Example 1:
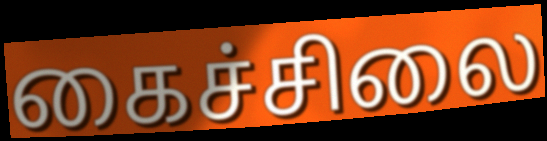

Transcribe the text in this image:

கைச்சிலை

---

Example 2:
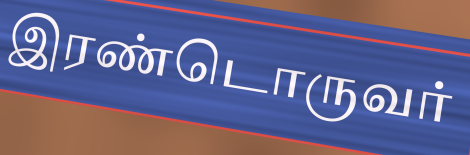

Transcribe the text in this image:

இரண்டொருவர்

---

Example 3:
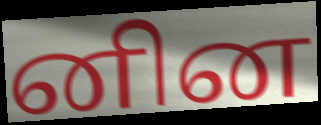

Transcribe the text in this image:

னின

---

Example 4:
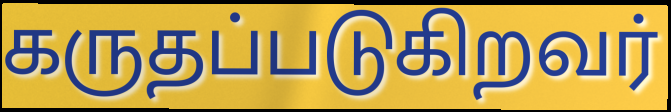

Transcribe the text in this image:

கருதப்படுகிறவர்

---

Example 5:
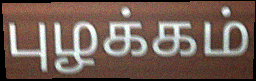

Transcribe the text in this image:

புழக்கம்